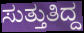
ಸುತ್ತುತಿದ್ದ